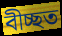
বীচ্ছত